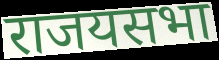
राजयसभा